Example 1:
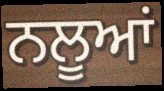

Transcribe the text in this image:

ਨਲੂਆਂ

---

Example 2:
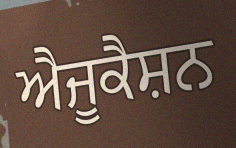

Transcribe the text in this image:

ਐਜੂਕੈਸ਼ਨ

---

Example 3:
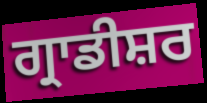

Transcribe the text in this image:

ਗ੍ਰਾਡੀਸ਼ਰ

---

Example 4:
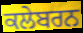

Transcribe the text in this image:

ਕਲੇਬਰਨ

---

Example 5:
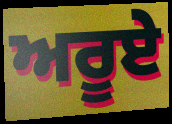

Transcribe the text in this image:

ਅਰੂਏ